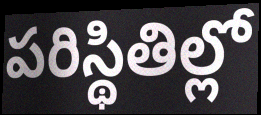
పరిస్థితిల్లో